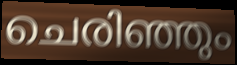
ചെരിഞ്ഞും